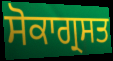
ਸੋਕਾਗ੍ਰਸਤ